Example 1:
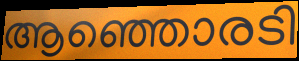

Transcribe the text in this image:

ആഞ്ഞൊരടി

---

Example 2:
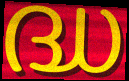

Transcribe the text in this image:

ദ്ധ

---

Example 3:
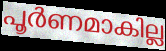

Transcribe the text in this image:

പൂർണമാകില്ല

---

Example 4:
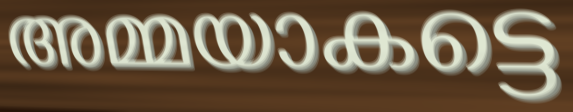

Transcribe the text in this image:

അമ്മയാകട്ടെ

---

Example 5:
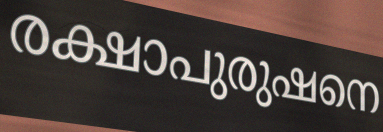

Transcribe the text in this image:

രക്ഷാപുരുഷനെ